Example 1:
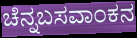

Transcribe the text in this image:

ಚೆನ್ನಬಸವಾಂಕನ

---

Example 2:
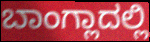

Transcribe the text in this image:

ಬಾಂಗ್ಲಾದಲ್ಲಿ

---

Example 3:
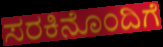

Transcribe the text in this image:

ಸರಕಿನೊಂದಿಗೆ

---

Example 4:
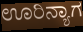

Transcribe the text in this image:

ಊರಿನ್ಯಾಗ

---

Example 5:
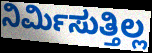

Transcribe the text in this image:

ನಿರ್ಮಿಸುತ್ತಿಲ್ಲ